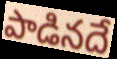
పాడినదే